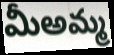
మీఅమ్మ